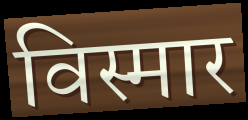
विस्मार